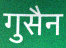
गुसैन